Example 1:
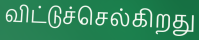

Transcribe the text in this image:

விட்டுச்செல்கிறது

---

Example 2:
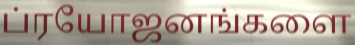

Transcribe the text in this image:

ப்ரயோஜனங்களை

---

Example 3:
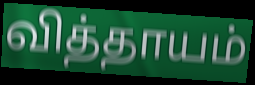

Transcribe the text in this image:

வித்தாயம்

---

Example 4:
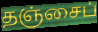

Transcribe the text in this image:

தஞ்சைப்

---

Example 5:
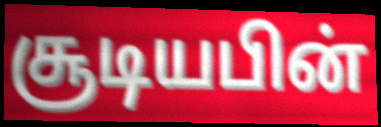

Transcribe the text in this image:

சூடியபின்